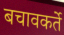
बचावकर्ते